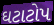
ઘટાટોપ